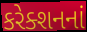
કરેક્શનનાં